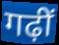
गढ़ीं